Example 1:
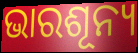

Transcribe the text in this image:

ଭାରଶୂନ୍ୟ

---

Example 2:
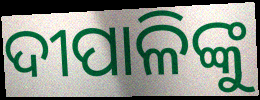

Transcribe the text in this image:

ଦୀପାଳିଙ୍କୁ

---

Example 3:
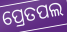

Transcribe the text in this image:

ପ୍ରେତପଲ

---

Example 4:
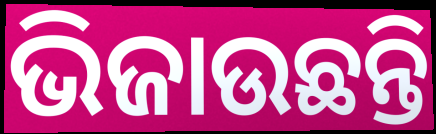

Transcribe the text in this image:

ଭିଜାଉଛନ୍ତି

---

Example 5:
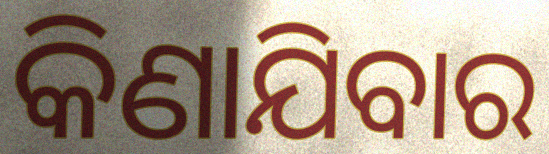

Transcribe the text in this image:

କିଣାଯିବାର